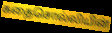
கதைசொல்லியின்